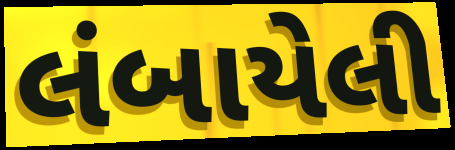
લંબાયેલી